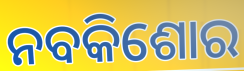
ନବକିଶୋର